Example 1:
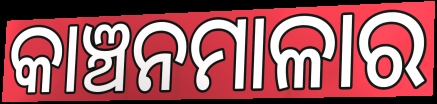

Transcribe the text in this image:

କାଞ୍ଚନମାଳାର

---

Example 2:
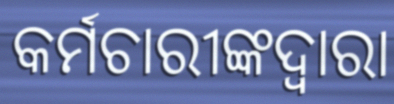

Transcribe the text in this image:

କର୍ମଚାରୀଙ୍କଦ୍ୱାରା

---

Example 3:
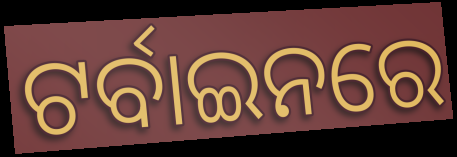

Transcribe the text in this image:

ଟର୍ବାଇନରେ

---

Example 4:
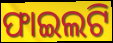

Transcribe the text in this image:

ଫାଇଲଟି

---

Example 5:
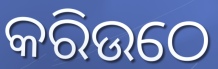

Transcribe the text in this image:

କରିଉଠେ